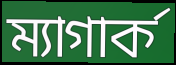
ম্যাগার্ক